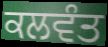
ਕਲਵੰਤ